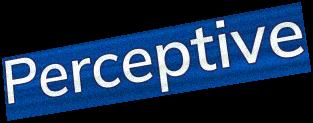
Perceptive